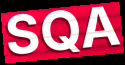
SQA